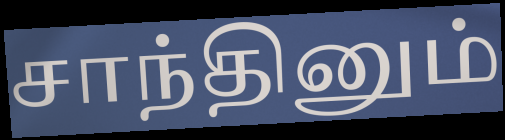
சாந்தினும்